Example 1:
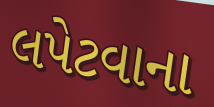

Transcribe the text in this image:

લપેટવાના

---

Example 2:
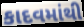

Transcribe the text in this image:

કાદવમાંથી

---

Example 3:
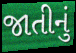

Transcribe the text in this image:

જાતીનું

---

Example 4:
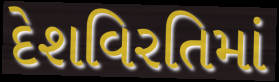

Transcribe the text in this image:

દેશવિરતિમાં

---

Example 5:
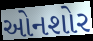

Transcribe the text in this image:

ઓનશોર